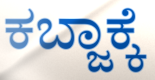
ಕಬ್ಜಾಕ್ಕೆ